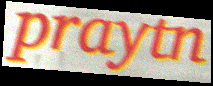
praytn